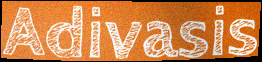
Adivasis